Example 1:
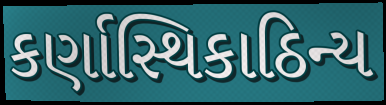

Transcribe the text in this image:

કર્ણાસ્થિકાઠિન્ય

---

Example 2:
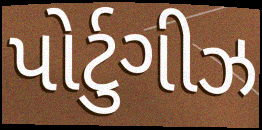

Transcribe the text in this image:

પોર્ટુગીઝ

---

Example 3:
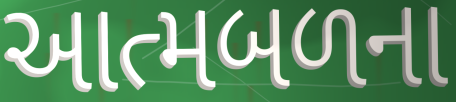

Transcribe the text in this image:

આત્મબળના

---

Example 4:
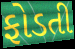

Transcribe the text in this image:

ફોડતી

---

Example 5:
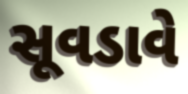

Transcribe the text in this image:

સૂવડાવે